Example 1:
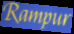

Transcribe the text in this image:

Rampur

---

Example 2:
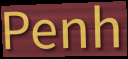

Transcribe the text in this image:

Penh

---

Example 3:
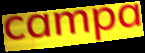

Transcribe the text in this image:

campa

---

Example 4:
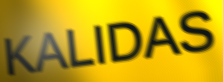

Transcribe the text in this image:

KALIDAS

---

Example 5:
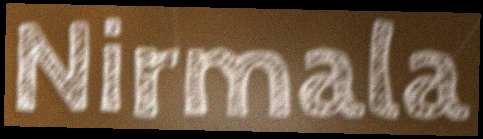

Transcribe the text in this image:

Nirmala